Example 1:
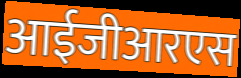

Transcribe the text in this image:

आईजीआरएस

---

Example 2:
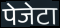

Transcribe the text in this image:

पेजेटा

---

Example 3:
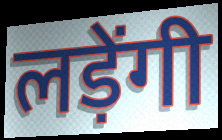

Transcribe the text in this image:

लड़ेंगी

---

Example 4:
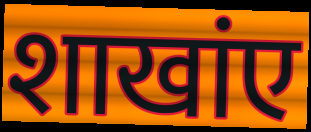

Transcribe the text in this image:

शाखांए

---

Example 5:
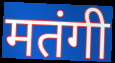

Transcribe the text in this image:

मतंगी